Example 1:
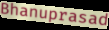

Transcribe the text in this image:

Bhanuprasad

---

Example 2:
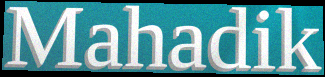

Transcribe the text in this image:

Mahadik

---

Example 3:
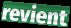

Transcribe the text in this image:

revient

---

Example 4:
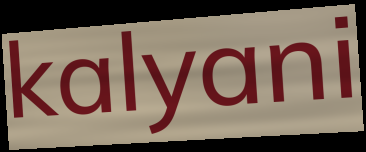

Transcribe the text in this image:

kalyani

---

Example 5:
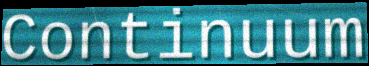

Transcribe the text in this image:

Continuum